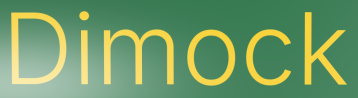
Dimock